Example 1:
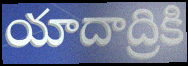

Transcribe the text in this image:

యాదాద్రికి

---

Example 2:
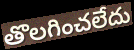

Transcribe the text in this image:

తొలగించలేదు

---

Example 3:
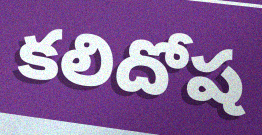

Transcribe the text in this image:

కలిదోష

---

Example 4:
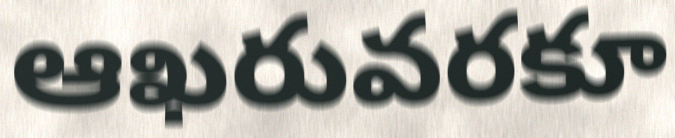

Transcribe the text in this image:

ఆఖరువరకూ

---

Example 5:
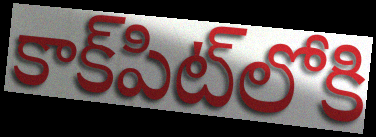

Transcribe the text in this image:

కాక్‌పిట్‌లోకి